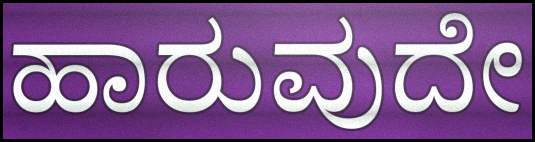
ಹಾರುವುದೇ